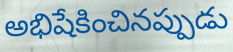
అభిషేకించినప్పుడు